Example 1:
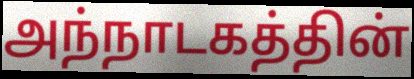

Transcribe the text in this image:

அந்நாடகத்தின்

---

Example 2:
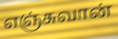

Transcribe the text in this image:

எஞ்சுவான்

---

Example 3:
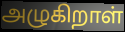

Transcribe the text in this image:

அழுகிறாள்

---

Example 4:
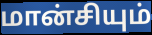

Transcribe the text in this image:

மான்சியும்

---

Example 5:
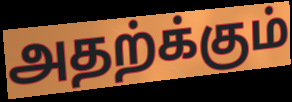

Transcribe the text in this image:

அதற்க்கும்